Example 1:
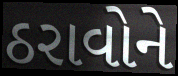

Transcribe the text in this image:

ઠરાવોને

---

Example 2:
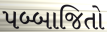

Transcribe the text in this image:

પબ્બાજિતો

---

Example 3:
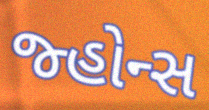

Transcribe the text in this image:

જ્હોન્સ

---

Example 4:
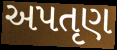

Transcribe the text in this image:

અપતૃણ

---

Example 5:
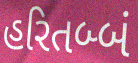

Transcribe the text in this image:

હરિતબ્બં